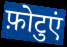
फ़ोटुएं